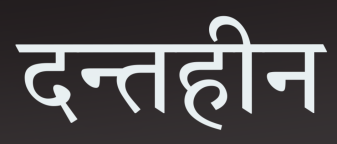
दन्तहीन